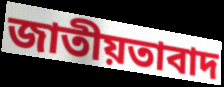
জাতীয়তাবাদ